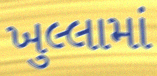
ખુલ્લામાં